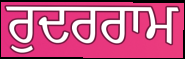
ਰੁਦਰਰਾਮ